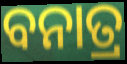
ବନାତ୍ର